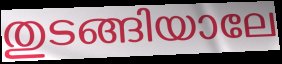
തുടങ്ങിയാലേ